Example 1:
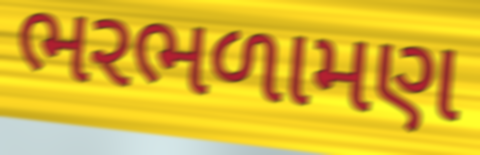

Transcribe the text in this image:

ભરભળામણ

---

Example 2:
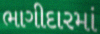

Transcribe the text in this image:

ભાગીદારમાં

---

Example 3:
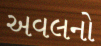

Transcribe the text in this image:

અવલનો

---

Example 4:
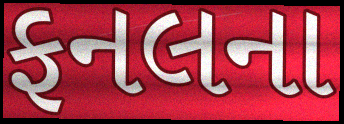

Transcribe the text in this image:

ફનલના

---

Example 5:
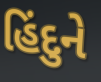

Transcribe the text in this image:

હિંદુને